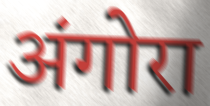
अंगोरा